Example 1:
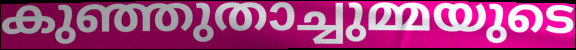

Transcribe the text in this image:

കുഞ്ഞുതാച്ചുമ്മയുടെ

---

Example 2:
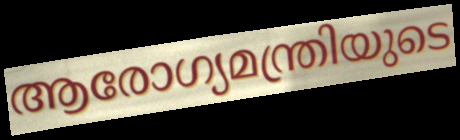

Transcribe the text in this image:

ആരോഗ്യമന്ത്രിയുടെ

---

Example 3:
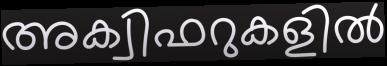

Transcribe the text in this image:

അക്വിഫറുകളിൽ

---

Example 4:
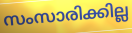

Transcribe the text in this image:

സംസാരിക്കില്ല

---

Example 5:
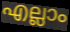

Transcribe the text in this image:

എല്ലാം